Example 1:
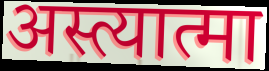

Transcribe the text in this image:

अस्त्यात्मा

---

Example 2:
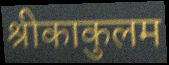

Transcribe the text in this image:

श्रीकाकुलम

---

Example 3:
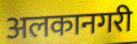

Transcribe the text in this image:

अलकानगरी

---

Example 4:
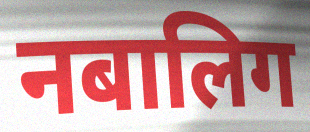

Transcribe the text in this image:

नबालिग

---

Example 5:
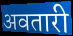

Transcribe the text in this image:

अवतारी